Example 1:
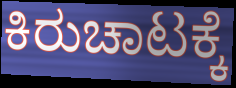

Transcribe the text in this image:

ಕಿರುಚಾಟಕ್ಕೆ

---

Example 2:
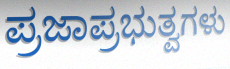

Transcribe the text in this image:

ಪ್ರಜಾಪ್ರಭುತ್ವಗಳು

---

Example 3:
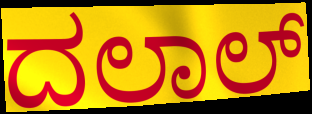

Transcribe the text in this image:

ದಲಾಲ್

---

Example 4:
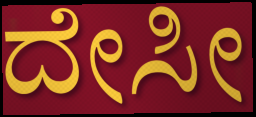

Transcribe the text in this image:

ದೇಸೀ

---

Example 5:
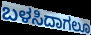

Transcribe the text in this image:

ಬಳಸಿದಾಗಲೂ